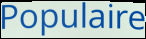
Populaire